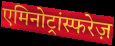
एमिनोट्रांस्फरेज़